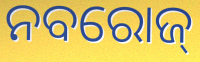
ନବରୋଜ୍